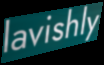
lavishly